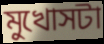
মুখোসটা